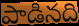
పాడినది